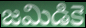
జమిడికె